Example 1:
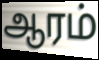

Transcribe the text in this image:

ஆரம்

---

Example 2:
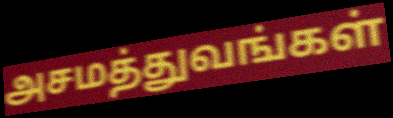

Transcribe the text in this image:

அசமத்துவங்கள்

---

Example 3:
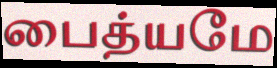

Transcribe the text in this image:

பைத்யமே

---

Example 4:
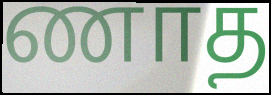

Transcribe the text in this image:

ணாத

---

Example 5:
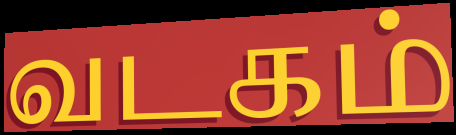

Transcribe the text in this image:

வடகம்